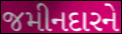
જમીનદારને